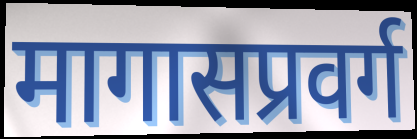
मागासप्रवर्ग